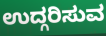
ಉದ್ಗರಿಸುವ